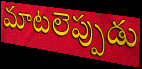
మాటలెప్పుడు